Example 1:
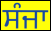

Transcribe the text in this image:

ਸੰਜਾ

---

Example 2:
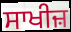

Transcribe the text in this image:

ਸਾਖੀਜ਼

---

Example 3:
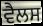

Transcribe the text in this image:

ਵੈਲਸ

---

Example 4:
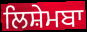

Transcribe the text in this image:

ਲਿਸ਼ੇਮਬਾ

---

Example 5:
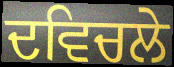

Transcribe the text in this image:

ਦਵਿਚਲੇ